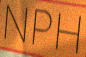
NPH